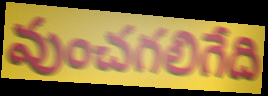
వుంచగలిగేది